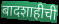
बादशाहीची